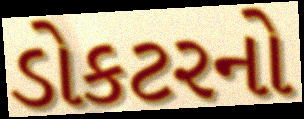
ડોકટરનો